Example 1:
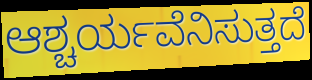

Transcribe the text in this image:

ಆಶ್ಚರ್ಯವೆನಿಸುತ್ತದೆ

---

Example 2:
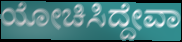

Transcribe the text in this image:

ಯೋಚಿಸಿದ್ದೇವಾ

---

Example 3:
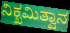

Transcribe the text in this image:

ನಿಕ್ಖಮಿತ್ವಾನ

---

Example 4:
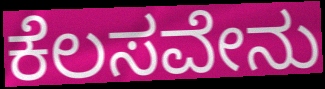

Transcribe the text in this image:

ಕೆಲಸವೇನು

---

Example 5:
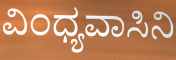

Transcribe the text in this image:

ವಿಂಧ್ಯವಾಸಿನಿ